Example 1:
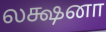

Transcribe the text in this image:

லக்ஷனா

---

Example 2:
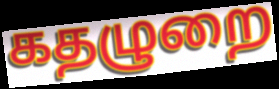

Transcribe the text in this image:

கதழுறை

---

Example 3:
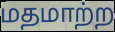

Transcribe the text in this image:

மதமாற்ற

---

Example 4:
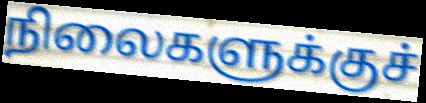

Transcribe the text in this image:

நிலைகளுக்குச்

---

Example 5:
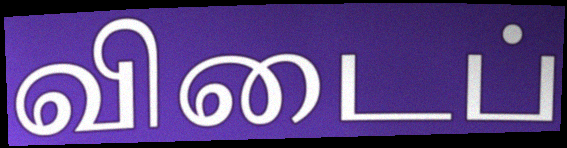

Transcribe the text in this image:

விடைப்